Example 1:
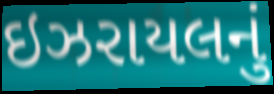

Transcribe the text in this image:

ઇઝરાયલનું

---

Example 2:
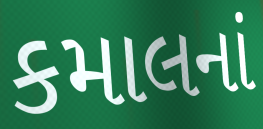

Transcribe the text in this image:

કમાલનાં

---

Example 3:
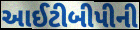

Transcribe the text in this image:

આઈટીબીપીની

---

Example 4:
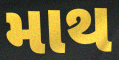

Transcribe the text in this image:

માથ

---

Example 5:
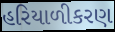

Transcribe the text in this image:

હરિયાળીકરણ